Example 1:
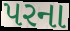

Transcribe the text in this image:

પરના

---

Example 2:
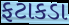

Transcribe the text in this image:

ફટાકડા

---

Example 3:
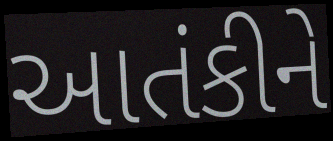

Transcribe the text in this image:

આતંકીને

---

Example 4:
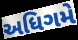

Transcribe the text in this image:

અધિગમે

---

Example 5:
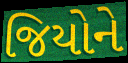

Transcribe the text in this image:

જિયોને